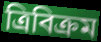
ত্রিবিক্রম